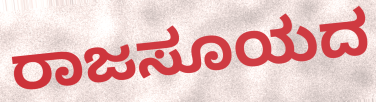
ರಾಜಸೂಯದ